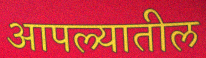
आपल्यातील